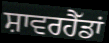
ਸ਼ਾਵਰਹੈੱਡਾਂ